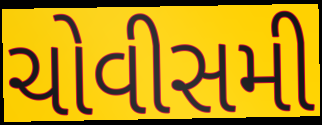
ચોવીસમી